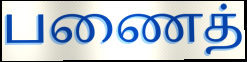
பணைத்